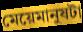
মেয়েমানুষটা